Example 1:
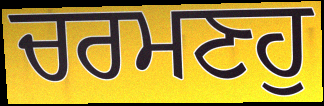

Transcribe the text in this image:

ਚਰਮਣਹੁ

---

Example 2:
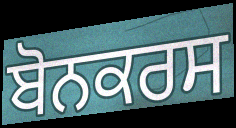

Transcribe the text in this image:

ਬੋਨਕਰਸ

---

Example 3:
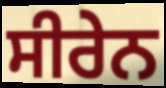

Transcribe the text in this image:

ਸੀਰੇਨ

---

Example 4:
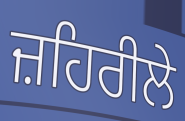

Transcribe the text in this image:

ਜ਼ਹਿਰੀਲੇ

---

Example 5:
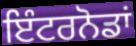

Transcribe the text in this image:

ਇੰਟਰਨੋਡਾਂ